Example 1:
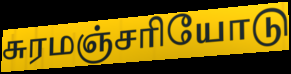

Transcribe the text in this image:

சுரமஞ்சரியோடு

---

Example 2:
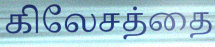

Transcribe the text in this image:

கிலேசத்தை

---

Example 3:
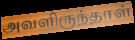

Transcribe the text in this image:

அவளிருந்தாள்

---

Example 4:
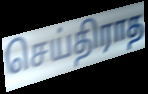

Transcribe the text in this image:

செய்திராத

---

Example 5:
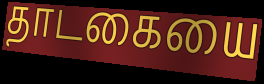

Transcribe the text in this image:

தாடகையை